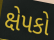
ક્ષેપકો